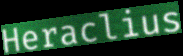
Heraclius